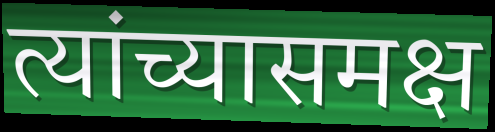
त्यांच्यासमक्ष